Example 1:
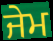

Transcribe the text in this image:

ਜੇਮ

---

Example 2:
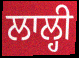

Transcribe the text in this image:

ਲਾਲ੍ਹੀ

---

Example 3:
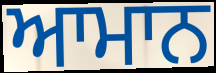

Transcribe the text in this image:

ਆਮਾਨ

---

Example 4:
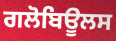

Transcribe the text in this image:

ਗਲੋਬਿਊਲਸ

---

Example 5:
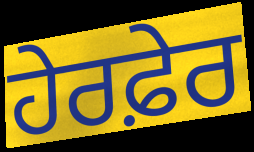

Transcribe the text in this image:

ਹੇਰਫ਼ੇਰ